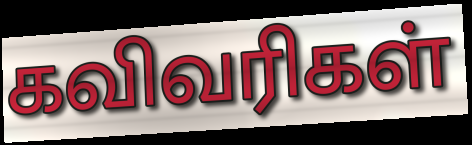
கவிவரிகள்